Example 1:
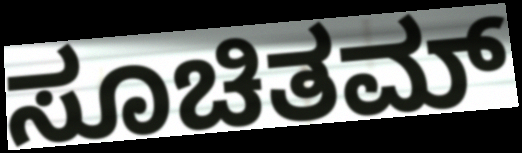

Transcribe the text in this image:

ಸೂಚಿತಮ್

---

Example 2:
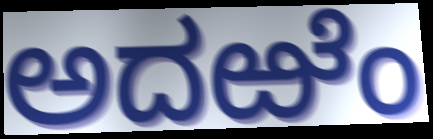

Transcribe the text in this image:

ಅದಱೆಂ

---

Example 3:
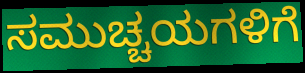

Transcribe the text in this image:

ಸಮುಚ್ಚಯಗಳಿಗೆ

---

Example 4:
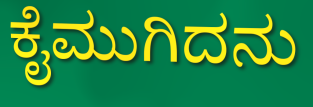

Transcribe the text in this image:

ಕೈಮುಗಿದನು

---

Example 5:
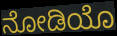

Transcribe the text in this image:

ನೋಡಿಯೊ